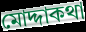
মোদ্দাকথা